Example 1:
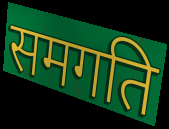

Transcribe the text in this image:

समगति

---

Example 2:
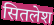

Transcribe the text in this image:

सितलेश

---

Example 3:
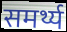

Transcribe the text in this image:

समर्थ्य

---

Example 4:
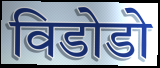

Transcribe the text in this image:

विडोडो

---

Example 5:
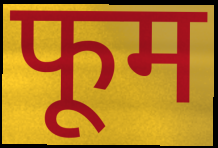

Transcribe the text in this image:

फूम